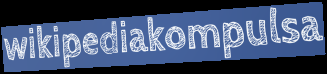
wikipediakompulsa